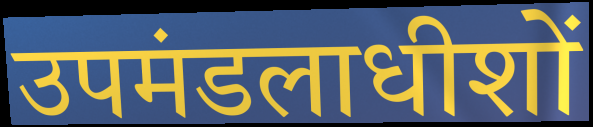
उपमंडलाधीशों